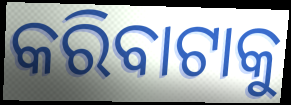
କରିବାଟାକୁ